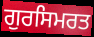
ਗੁਰਸਿਮਰਤ